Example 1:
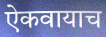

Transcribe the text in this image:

ऐकवायाच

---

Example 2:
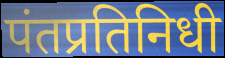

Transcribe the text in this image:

पंतप्रतिनिधी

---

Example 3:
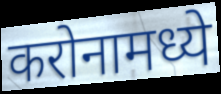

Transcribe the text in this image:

करोनामध्ये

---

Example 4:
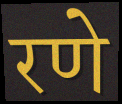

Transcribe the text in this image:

रणे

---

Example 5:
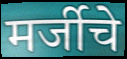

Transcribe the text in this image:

मर्जीचे